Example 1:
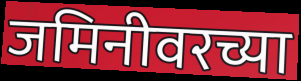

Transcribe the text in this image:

जमिनीवरच्या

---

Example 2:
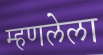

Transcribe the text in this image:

म्हणलेला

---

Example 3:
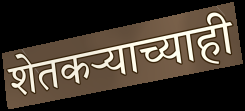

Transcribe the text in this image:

शेतकऱ्याच्याही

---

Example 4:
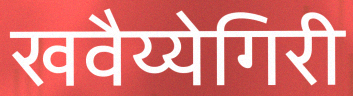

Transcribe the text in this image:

खवैय्येगिरी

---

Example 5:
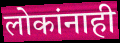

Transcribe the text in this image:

लोकांनाही